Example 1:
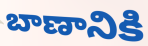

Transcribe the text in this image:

బాణానికి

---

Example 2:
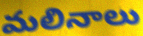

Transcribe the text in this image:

మలినాలు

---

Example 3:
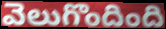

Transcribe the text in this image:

వెలుగొందింది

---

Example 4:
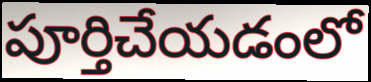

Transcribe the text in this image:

పూర్తిచేయడంలో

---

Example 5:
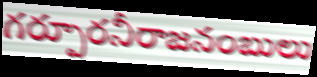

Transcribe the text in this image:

గర్పూరనీరాజనంబులు